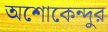
অশোকেন্দুর